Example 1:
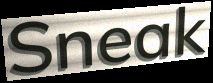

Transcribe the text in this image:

Sneak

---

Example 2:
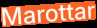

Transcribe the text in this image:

Marottar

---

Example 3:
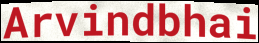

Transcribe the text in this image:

Arvindbhai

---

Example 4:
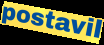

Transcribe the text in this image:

postavil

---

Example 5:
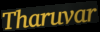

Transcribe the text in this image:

Tharuvar